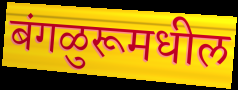
बंगळुरूमधील